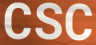
CSC